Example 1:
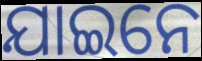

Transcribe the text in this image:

ଯାଇନେ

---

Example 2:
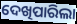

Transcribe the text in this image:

ଦେଖିପାରିଲା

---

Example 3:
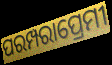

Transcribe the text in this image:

ପରମ୍ପରାପ୍ରେମୀ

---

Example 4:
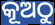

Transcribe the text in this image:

କୂଅଠୁ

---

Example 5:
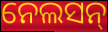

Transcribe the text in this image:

ନେଲସନ୍